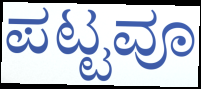
ಪಟ್ಟವೂ